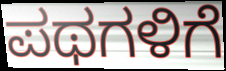
ಪಥಗಳಿಗೆ